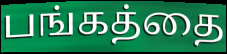
பங்கத்தை